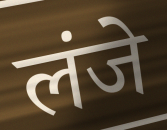
लंजे